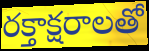
రక్తాక్షరాలతో